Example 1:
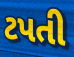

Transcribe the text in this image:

ટપતી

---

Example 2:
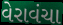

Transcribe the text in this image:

વેરાવંચા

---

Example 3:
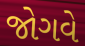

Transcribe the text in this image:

જોગવે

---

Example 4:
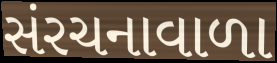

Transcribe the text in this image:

સંરચનાવાળા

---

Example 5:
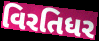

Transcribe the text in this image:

વિરતિધર